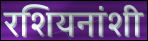
रशियनांशी